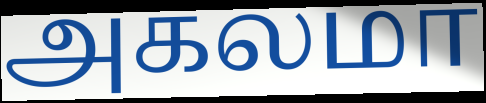
அகலமா